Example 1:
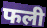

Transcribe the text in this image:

फली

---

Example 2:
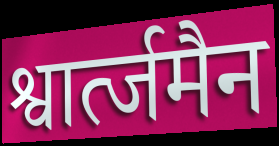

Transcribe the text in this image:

श्वार्त्जमैन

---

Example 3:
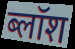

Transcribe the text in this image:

ब्लॉश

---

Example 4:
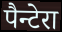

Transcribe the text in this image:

पैन्टेरा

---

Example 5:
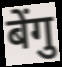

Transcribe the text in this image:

बेंगु